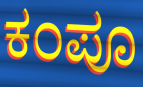
ಕಂಪೂ